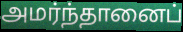
அமர்ந்தானைப்